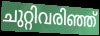
ചുറ്റിവരിഞ്ഞ്